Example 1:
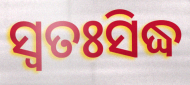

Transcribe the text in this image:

ସ୍ବତଃସିଦ୍ଧ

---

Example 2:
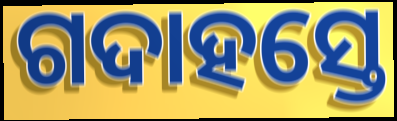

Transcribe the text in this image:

ଗଦାହସ୍ତେ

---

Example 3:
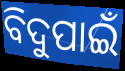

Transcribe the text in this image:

ବିଦୁପାଇଁ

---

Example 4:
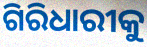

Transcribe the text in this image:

ଗିରିଧାରୀକୁ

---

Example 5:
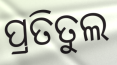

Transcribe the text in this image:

ପ୍ରତିତୁଲ